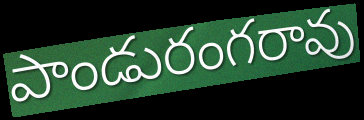
పాండురంగరావు